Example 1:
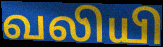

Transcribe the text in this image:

வலியி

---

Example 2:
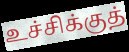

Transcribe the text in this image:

உச்சிக்குத்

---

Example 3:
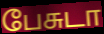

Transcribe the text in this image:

பேசுடா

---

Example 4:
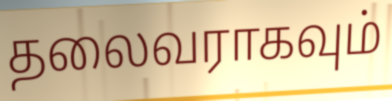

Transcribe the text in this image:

தலைவராகவும்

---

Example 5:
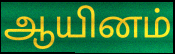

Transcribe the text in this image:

ஆயினம்